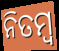
ନିତମ୍ୱ